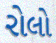
રોલો